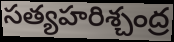
సత్యహరిశ్చంద్ర